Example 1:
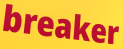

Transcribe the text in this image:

breaker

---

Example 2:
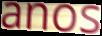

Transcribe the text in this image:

anos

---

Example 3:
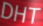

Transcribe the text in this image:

DHT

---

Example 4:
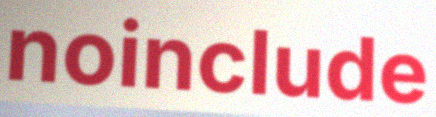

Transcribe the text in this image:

noinclude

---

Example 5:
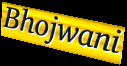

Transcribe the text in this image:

Bhojwani